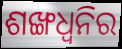
ଶଙ୍ଖଧ୍ବନିର